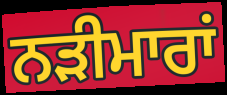
ਨੜੀਮਾਰਾਂ